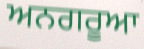
ਅਨਗਰੂਆ